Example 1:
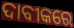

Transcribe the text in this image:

ଦାବୀକରେ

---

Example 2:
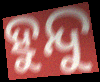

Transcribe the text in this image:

ହୁନ୍ଦୁ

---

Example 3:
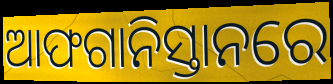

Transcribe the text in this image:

ଆଫଗାନିସ୍ତାନରେ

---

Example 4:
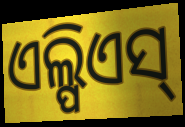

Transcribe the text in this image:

ଏଲ୍ପିଏସ୍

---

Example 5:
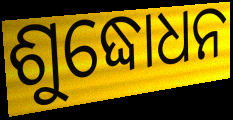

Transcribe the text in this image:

ଶୁଦ୍ଧୋଧନ